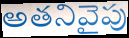
అతనివైపు